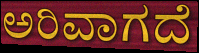
ಅರಿವಾಗದೆ